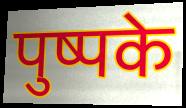
पुष्पके